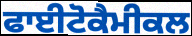
ਫਾਈਟੋਕੈਮੀਕਲ